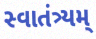
સ્વાતંત્ર્યમ્